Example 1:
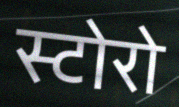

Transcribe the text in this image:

स्टोरो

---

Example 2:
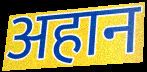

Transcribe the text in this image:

अहान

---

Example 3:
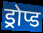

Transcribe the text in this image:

ड्रोप्ड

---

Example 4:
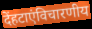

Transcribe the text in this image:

देंहटाएंविचारणीय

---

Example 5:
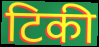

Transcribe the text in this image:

टिकी